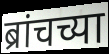
ब्रांचच्या